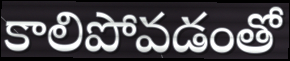
కాలిపోవడంతో